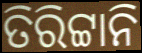
ତିରିଟ୍ଟାନି